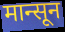
मान्सून